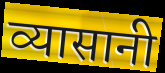
व्यासानी